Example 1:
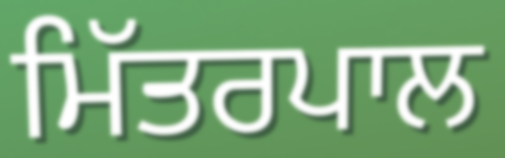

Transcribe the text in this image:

ਮਿੱਤਰਪਾਲ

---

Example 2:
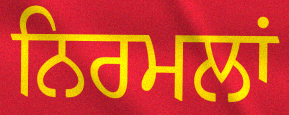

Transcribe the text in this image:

ਨਿਰਮਲਾਂ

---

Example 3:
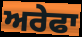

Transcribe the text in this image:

ਅਰੇਫਾ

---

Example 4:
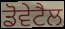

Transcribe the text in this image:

ਡੋਵੇਟੈਲ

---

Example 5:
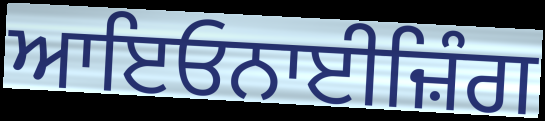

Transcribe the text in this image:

ਆਇਓਨਾਈਜ਼ਿੰਗ